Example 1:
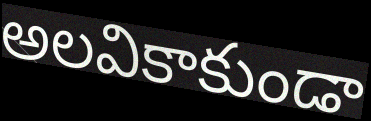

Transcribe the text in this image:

అలవికాకుండా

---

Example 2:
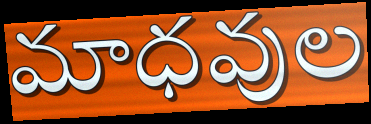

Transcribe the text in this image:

మాధవుల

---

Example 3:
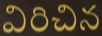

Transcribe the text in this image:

విరిచిన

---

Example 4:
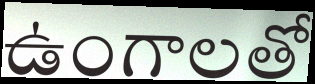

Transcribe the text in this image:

ఉంగాలతో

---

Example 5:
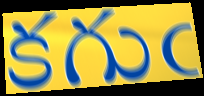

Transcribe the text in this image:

కగుఁ